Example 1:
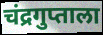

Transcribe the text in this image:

चंद्रगुप्ताला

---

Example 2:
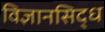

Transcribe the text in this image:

विज्ञानसिद्ध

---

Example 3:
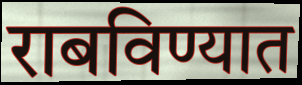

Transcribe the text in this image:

राबविण्‍यात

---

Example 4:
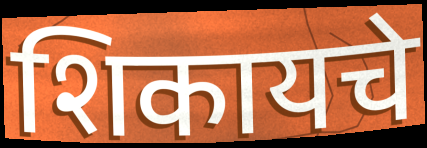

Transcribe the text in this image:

शिकायचे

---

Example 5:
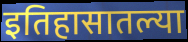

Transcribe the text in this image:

इतिहासातल्या